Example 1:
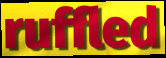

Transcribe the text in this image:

ruffled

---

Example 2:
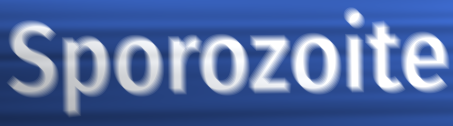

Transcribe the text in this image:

Sporozoite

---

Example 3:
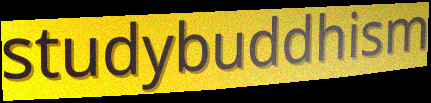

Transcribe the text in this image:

studybuddhism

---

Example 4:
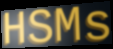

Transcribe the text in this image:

HSMs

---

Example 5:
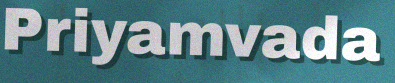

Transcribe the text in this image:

Priyamvada